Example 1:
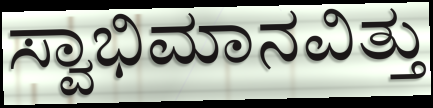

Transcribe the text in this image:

ಸ್ವಾಭಿಮಾನವಿತ್ತು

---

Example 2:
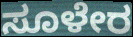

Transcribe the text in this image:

ಸೂಳೇರ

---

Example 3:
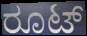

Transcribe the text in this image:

ರೂಟ್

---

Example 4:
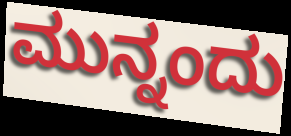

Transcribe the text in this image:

ಮುನ್ನಂದು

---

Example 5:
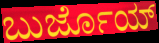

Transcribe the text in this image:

ಬುರ್ಜೊಯ್